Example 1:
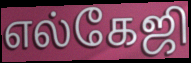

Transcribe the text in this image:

எல்கேஜி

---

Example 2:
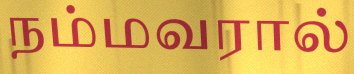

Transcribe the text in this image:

நம்மவரால்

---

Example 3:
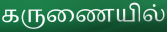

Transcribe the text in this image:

கருணையில்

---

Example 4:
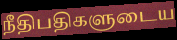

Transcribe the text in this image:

நீதிபதிகளுடைய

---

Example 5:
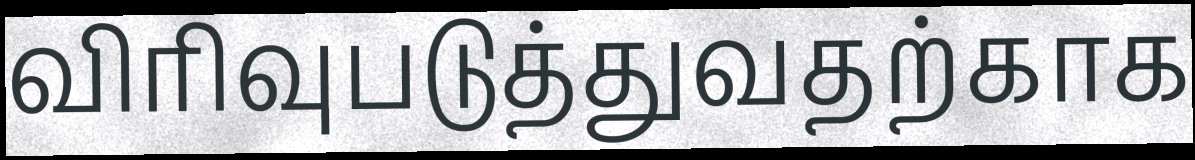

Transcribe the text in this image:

விரிவுபடுத்துவதற்காக